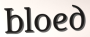
bloed